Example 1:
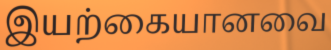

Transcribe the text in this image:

இயற்கையானவை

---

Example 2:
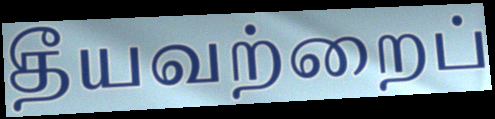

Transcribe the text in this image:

தீயவற்றைப்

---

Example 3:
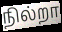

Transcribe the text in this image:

நில்றா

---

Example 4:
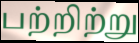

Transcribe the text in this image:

பற்றிற்று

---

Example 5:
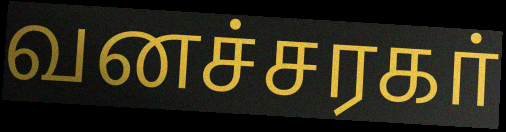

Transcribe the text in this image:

வனச்சரகர்